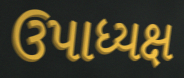
ઉપાધ્યક્ષ